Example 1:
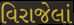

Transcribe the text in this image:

વિરાજેલાં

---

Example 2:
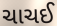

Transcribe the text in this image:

ચાચઈ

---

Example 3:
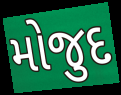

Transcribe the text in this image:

મોજુદ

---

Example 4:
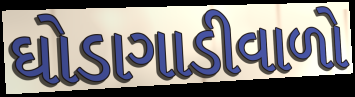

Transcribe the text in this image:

ઘોડાગાડીવાળો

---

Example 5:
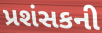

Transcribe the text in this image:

પ્રશંસકની